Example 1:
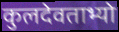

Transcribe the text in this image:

कुलदेवताभ्यो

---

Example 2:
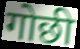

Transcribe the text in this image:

गोछी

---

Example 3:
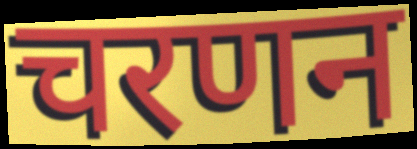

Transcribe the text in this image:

चरणन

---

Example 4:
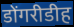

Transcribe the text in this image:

डोंगरीडीह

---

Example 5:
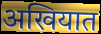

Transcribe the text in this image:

अखियात